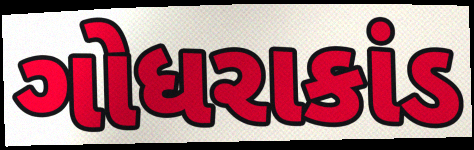
ગોધરાકાંડ